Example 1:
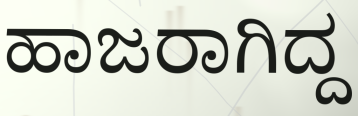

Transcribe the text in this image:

ಹಾಜರಾಗಿದ್ದ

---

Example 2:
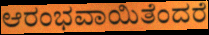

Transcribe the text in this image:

ಆರಂಭವಾಯಿತೆಂದರೆ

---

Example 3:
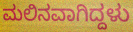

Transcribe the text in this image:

ಮಲಿನವಾಗಿದ್ದಳು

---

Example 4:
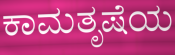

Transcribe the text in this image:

ಕಾಮತೃಷೆಯ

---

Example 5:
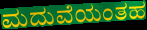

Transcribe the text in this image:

ಮದುವೆಯಂತಹ